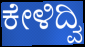
ಕೇಳಿದ್ವಿ